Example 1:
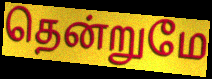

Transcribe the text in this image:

தென்றுமே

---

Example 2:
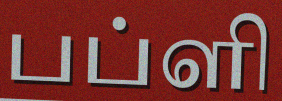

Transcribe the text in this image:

பப்ளி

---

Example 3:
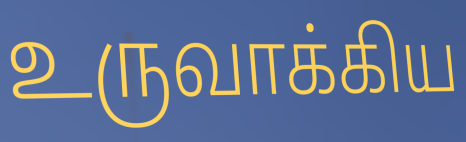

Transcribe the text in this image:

உருவாக்கிய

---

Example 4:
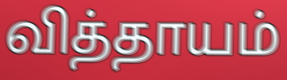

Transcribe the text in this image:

வித்தாயம்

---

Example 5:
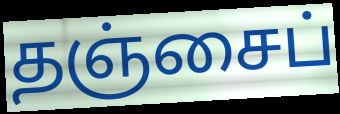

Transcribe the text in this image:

தஞ்சைப்